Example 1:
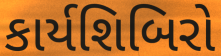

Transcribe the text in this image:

કાર્યશિબિરો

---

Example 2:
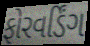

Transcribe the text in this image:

ફોરવર્ડિંગ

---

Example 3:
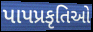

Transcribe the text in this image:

પાપપ્રકૃતિઓ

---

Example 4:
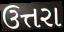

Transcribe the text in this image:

ઉત્તરા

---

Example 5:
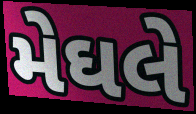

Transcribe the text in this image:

મેઘલે